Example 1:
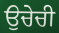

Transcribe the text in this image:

ਉਚੇਚੀ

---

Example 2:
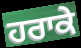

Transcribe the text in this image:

ਹਰਾਕੇ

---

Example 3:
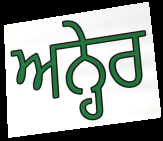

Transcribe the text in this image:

ਅਨ੍ਹੇਰ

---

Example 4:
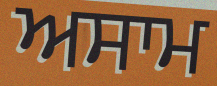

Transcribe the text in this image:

ਅਸਾਮ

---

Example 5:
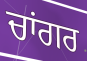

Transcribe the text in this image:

ਚਾਂਗਰ